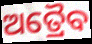
ଅତ୍ରୈବ